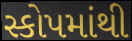
સ્કોપમાંથી